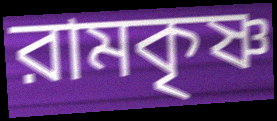
রামকৃষ্ণ